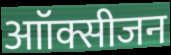
आॉक्सीजन